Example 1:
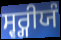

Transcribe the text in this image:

ਸ੍ਵਰ੍ਗੀਯੰ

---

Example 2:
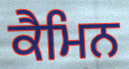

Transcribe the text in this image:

ਕੈਮਿਨ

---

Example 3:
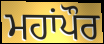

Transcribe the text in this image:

ਮਹਾਂਪੌਰ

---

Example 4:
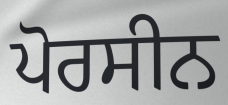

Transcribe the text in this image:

ਪੋਰਸੀਨ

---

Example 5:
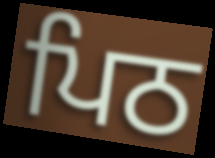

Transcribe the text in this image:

ਪਿਠ